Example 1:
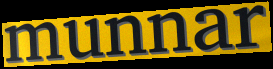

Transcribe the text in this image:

munnar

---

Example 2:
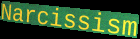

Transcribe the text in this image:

Narcissism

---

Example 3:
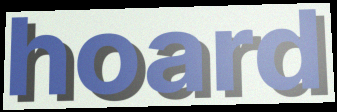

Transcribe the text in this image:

hoard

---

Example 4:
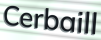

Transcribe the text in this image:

Cerbaill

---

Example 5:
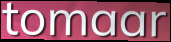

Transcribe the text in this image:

tomaar